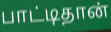
பாட்டிதான்